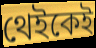
থেইকেই